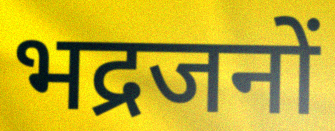
भद्रजनों